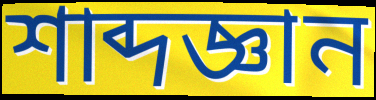
শাব্দজ্ঞান